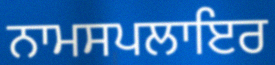
ਨਾਮਸਪਲਾਇਰ